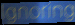
Ignoring